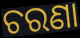
ଚରଣା